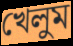
খেলুম